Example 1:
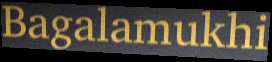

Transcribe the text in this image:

Bagalamukhi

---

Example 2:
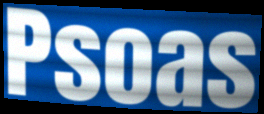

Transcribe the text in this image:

Psoas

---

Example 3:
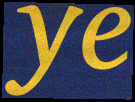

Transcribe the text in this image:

ye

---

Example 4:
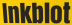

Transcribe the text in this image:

Inkblot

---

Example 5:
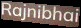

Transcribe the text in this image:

Rajnibhai